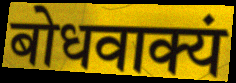
बोधवाक्यं